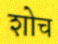
शोच